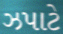
ઝપાટે